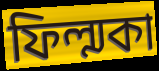
ফিল্মকা